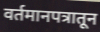
वर्तमानपत्रातून